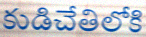
కుడిచేతిలోకి